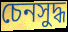
চেনসুদ্ধ